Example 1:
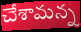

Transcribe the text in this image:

చేశామన్న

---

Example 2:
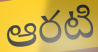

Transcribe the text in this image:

ఆరటి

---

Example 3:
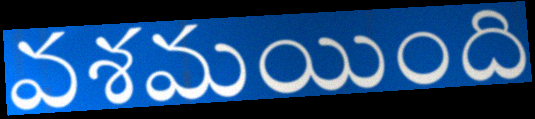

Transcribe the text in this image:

వశమయింది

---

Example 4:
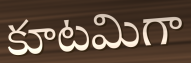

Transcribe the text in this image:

కూటమిగా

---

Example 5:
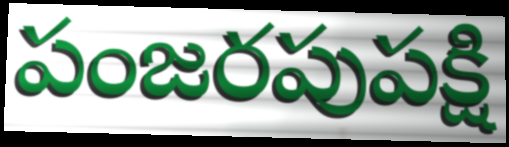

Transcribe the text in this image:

పంజరపుపక్షి